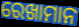
ରେଖାମାନ